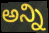
అన్ని